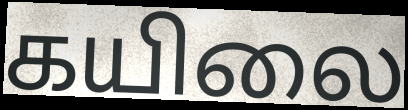
கயிலை